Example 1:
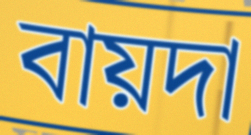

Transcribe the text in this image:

বায়দা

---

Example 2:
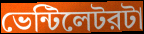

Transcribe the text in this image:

ভেন্টিলেটরটা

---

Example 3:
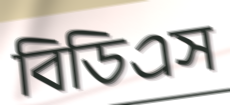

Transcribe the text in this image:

বিডিএস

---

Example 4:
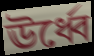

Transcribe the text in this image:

ঊর্ধ্বে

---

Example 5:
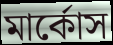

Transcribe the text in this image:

মার্কোস